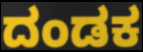
ದಂಡಕ